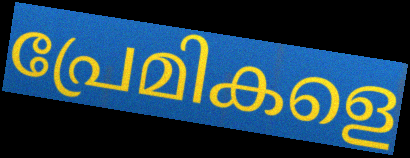
പ്രേമികളെ